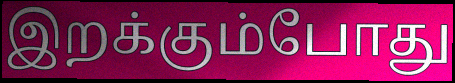
இறக்கும்போது